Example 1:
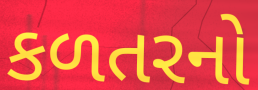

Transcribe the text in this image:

કળતરનો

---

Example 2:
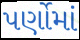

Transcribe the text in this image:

પર્ણોમાં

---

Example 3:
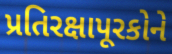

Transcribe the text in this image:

પ્રતિરક્ષાપૂરકોને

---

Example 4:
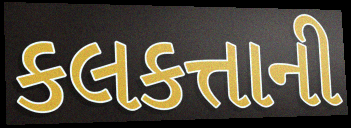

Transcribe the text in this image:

કલકત્તાની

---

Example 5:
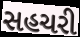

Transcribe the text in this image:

સહચરી